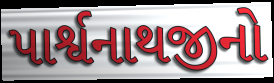
પાર્શ્વનાથજીનો